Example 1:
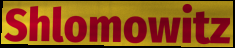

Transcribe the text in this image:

Shlomowitz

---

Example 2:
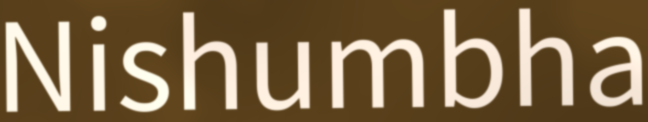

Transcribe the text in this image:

Nishumbha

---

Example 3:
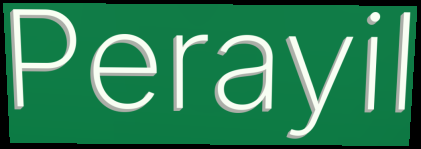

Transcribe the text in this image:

Perayil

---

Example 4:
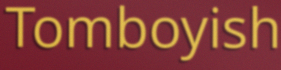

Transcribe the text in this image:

Tomboyish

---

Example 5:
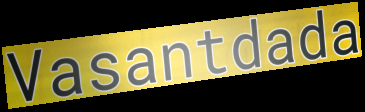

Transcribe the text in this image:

Vasantdada